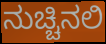
ನುಚ್ಚಿನಲಿ